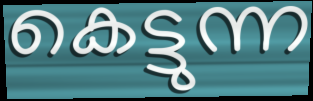
കെട്ടുന്ന